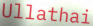
Ullathai